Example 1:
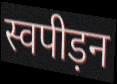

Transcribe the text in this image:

स्वपीड़न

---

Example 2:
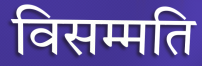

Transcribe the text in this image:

विसम्मति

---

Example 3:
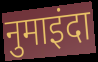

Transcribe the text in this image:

नुमाइंदा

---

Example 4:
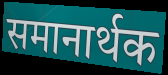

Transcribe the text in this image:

समानार्थक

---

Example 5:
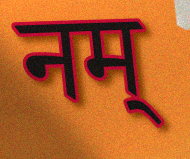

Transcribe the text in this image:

नम्